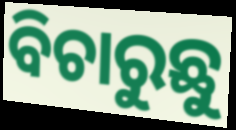
ବିଚାରୁଛୁ